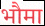
भौमा